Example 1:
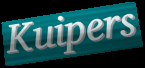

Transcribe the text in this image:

Kuipers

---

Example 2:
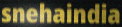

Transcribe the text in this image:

snehaindia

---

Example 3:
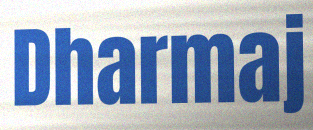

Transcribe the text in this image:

Dharmaj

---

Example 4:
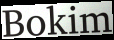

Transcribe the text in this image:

Bokim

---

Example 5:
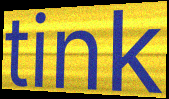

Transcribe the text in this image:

tink